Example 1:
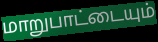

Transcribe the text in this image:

மாறுபாட்டையும்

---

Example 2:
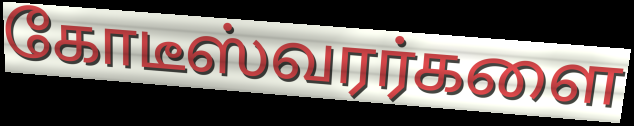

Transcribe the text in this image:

கோடீஸ்வரர்களை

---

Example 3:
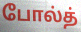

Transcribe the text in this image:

போல்த்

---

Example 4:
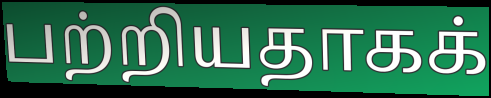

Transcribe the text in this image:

பற்றியதாகக்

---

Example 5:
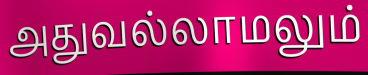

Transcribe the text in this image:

அதுவல்லாமலும்